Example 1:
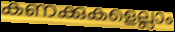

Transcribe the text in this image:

കണക്കുകളെല്ലാം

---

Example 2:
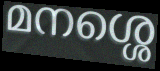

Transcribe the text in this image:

മനശ്ശെ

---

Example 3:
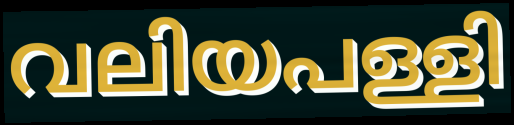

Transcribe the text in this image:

വലിയപള്ളി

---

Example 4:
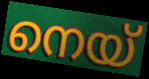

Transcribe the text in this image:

നെയ്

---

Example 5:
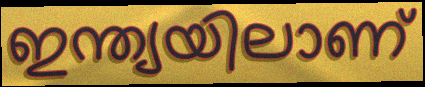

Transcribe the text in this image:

ഇന്ത്യയിലാണ്